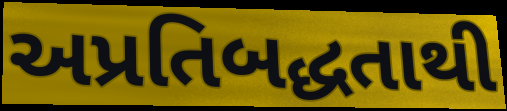
અપ્રતિબદ્ધતાથી